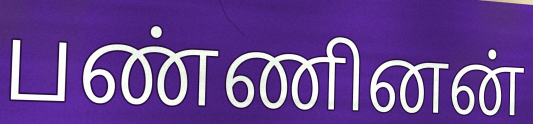
பண்ணினன்